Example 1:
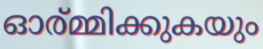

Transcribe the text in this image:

ഓര്മ്മിക്കുകയും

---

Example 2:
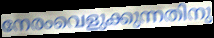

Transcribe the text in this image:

നേരംവെളുക്കുന്നതിനു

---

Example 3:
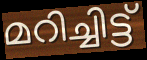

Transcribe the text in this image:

മറിച്ചിട്ട്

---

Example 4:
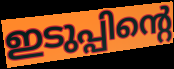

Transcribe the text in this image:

ഇടുപ്പിന്റെ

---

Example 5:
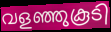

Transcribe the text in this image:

വളഞ്ഞുകൂടി